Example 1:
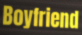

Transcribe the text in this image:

Boyfriend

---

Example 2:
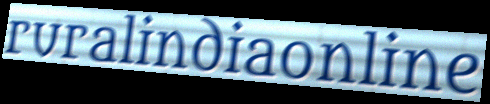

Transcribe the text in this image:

ruralindiaonline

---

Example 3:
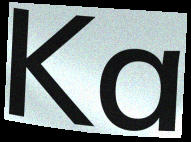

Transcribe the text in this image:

Ka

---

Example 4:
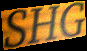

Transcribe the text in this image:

SHG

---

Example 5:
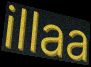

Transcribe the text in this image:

illaa